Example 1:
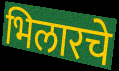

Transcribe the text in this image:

भिलारचे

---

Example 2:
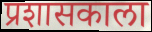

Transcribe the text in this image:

प्रशासकाला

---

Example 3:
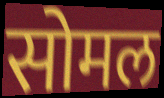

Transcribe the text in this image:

सोमल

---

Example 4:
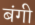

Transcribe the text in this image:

बंगी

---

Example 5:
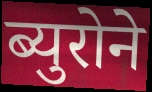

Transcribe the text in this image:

ब्युरोने